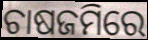
ଚାଷଜମିରେ